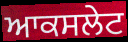
ਆਕਸਲੇਟ